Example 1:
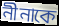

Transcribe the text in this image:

নীনাকে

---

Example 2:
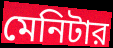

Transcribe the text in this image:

মেনিটার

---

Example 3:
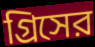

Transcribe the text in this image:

গ্রিসের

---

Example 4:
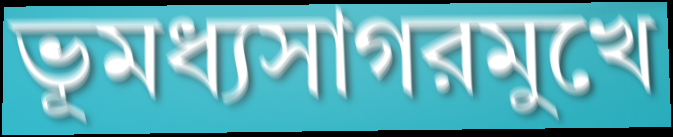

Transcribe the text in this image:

ভূমধ্যসাগরমুখে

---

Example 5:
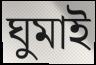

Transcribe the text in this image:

ঘুমাই